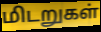
மிடறுகள்